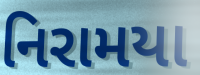
નિરામયા